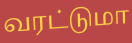
வரட்டுமா